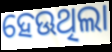
ହେଊଥିଲା